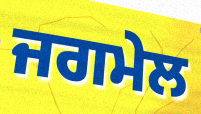
ਜਗਮੇਲ